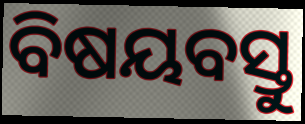
ବିଷୟବସ୍ତୁ